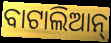
ବାଟାଲିଆନ୍